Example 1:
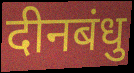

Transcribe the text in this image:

दीनबंधु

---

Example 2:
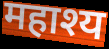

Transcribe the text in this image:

महाश्य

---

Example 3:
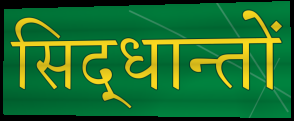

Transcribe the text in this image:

सिद्धान्तों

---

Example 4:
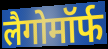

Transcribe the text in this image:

लैगोमॉर्फ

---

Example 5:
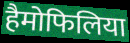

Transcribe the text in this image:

हैमोफिलिया